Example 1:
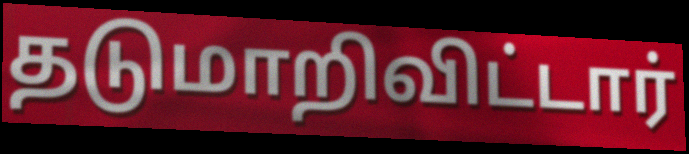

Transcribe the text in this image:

தடுமாறிவிட்டார்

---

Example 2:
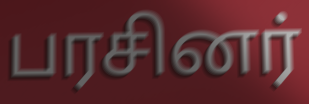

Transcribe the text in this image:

பரசினர்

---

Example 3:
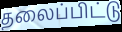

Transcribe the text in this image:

தலைப்பிட்டு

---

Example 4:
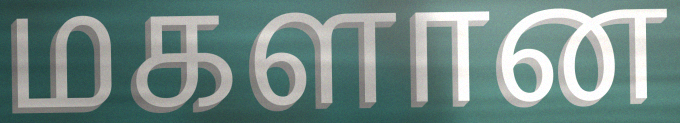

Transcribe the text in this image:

மகளான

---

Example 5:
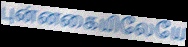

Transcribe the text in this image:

புன்னகையிலேயே